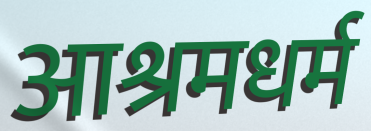
आश्रमधर्म